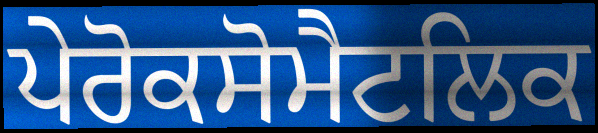
ਪੇਰੋਕਸੋਮੈਟਲਿਕ